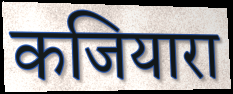
कजियारा